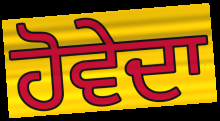
ਹੋਵੇਦਾ